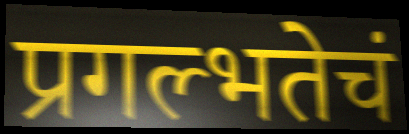
प्रगल्भतेचं